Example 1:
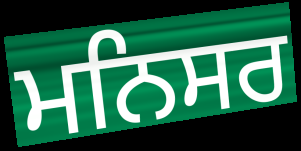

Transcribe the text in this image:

ਮਨਿਸਰ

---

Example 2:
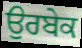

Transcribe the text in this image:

ਉਰਬੇਕ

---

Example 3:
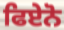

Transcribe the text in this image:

ਫਿਏਨੋ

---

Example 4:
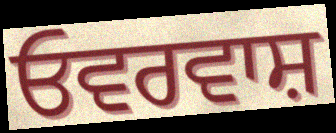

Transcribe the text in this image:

ਓਵਰਵਾਸ਼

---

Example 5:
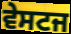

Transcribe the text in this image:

ਵੇਸਟਜ